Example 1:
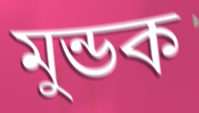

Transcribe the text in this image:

মুন্ডক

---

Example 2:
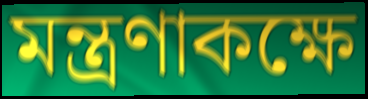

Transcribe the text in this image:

মন্ত্রণাকক্ষে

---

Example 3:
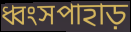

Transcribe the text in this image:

ধ্বংসপাহাড়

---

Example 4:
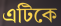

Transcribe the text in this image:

এটিকে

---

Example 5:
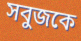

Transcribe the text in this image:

সবুজকে